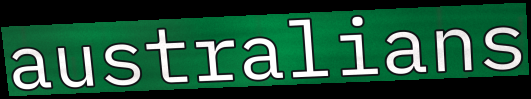
australians